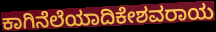
ಕಾಗಿನೆಲೆಯಾದಿಕೇಶವರಾಯ